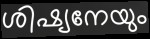
ശിഷ്യനേയും